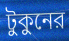
টুকুনের